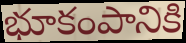
భూకంపానికి